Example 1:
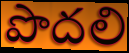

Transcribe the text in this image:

పొదలి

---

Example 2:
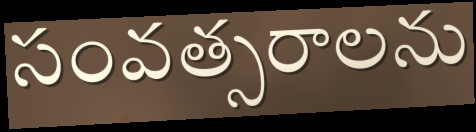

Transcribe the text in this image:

సంవత్సరాలను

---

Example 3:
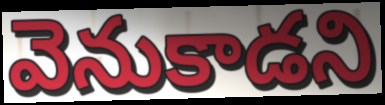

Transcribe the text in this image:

వెనుకాడని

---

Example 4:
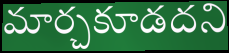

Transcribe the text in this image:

మార్చకూడదని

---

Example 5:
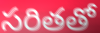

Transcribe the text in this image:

సరితతో